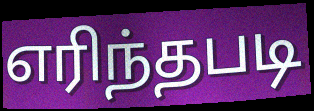
எரிந்தபடி